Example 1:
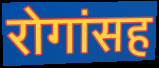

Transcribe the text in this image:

रोगांसह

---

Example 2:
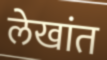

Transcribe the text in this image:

लेखांत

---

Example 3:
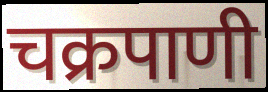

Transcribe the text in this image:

चक्रपाणी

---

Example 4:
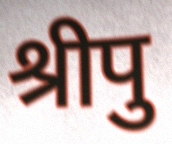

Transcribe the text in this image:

श्रीपु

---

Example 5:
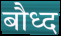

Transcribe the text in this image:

बौध्द